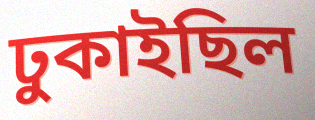
ঢুকাইছিল